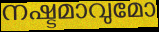
നഷ്ടമാവുമോ